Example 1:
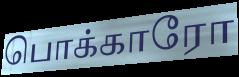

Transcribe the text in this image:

பொக்காரோ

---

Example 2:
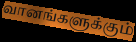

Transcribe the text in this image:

வானங்களுக்கும்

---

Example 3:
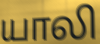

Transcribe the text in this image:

யாலி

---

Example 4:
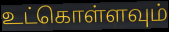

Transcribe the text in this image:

உட்கொள்ளவும்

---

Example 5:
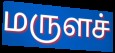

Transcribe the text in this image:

மருளச்